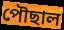
পৌছাল